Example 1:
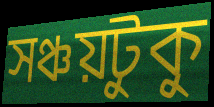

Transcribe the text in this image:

সঞ্চয়টুকু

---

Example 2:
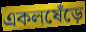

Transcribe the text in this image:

একলষেঁড়ে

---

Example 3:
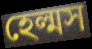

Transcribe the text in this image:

হেল্মস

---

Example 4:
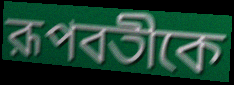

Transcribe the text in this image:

রূপবতীকে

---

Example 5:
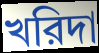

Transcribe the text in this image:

খরিদা